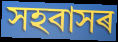
সহবাসৰ